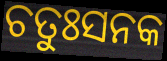
ଚତୁଃସନକ